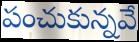
పంచుకున్నవే